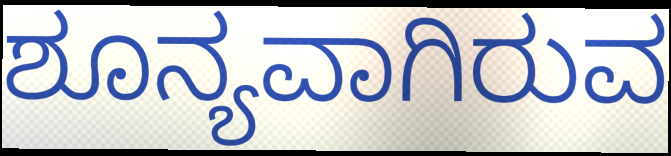
ಶೂನ್ಯವಾಗಿರುವ